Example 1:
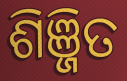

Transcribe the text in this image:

ଶିଞ୍ଜିତ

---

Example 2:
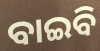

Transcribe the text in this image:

ବାଇବି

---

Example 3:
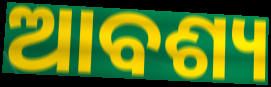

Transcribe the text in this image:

ଆବଶ୍ୟ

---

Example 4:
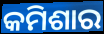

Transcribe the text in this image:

କମିଶାର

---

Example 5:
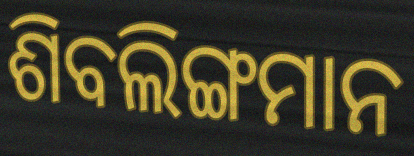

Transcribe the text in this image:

ଶିବଲିଙ୍ଗମାନ